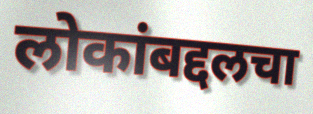
लोकांबद्दलचा